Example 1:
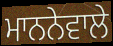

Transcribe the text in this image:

ਮਾਨਨੇਵਾਲੇ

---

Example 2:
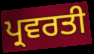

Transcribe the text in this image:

ਪ੍ਰਵਰਤੀ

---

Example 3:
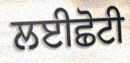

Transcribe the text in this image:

ਲਈਛੋਟੀ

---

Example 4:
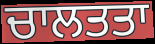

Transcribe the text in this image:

ਚਾਲਤਤਾ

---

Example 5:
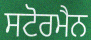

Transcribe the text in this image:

ਸਟੋਰਮੈਨ